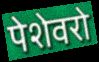
पेशेवरो